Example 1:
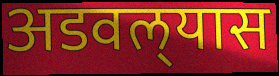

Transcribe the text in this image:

अडवल्यास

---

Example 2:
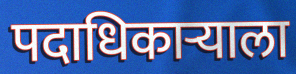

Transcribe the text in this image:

पदाधिकाऱ्याला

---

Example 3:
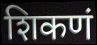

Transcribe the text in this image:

शिकणं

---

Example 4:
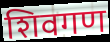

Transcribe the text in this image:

शिवगण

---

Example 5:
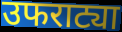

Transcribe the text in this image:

उफराट्या